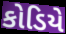
કોડિયે